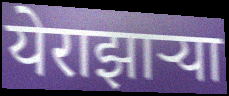
येराझाऱ्या